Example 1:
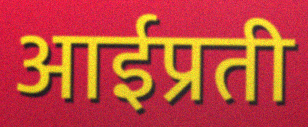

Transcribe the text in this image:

आईप्रती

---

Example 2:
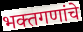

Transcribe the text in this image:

भक्तगणांचे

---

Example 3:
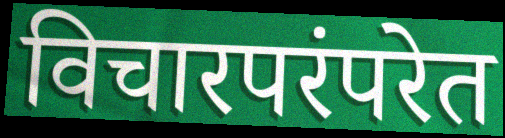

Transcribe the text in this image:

विचारपरंपरेत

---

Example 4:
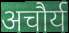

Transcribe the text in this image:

अचौर्य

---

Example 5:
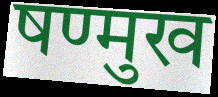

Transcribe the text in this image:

षण्मुख